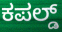
ಕಪಲ್ಡ್